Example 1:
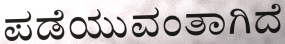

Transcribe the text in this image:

ಪಡೆಯುವಂತಾಗಿದೆ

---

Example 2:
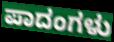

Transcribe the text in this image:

ಪಾದಂಗಳು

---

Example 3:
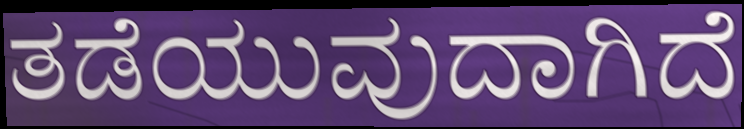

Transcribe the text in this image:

ತಡೆಯುವುದಾಗಿದೆ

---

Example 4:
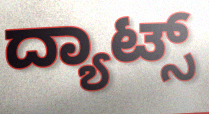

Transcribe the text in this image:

ದ್ಯಾಟ್ಸ್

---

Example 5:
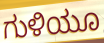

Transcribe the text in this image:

ಗುಳಿಯೂ